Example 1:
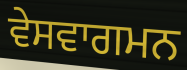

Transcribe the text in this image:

ਵੇਸਵਾਗਮਨ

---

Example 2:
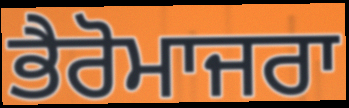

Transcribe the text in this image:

ਭੈਰੋਮਾਜਰਾ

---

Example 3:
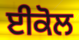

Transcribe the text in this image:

ਈਕੋਲ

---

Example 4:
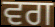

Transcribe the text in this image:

ਵਗ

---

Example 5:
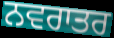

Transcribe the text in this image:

ਨਵਰਾਤਰ